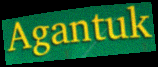
Agantuk